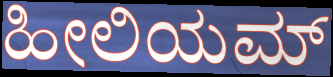
ಹೀಲಿಯಮ್